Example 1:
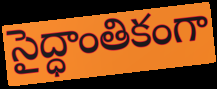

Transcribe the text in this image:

సైద్ధాంతికంగా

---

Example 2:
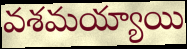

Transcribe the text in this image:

వశమయ్యాయి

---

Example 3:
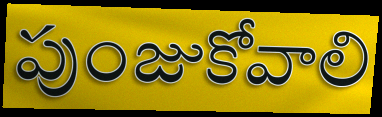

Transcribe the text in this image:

పుంజుకోవాలి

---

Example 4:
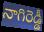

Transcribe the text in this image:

నాగిరెడ్డీ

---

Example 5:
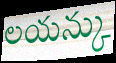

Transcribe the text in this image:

లయన్కు